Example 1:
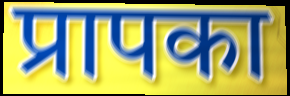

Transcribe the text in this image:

प्रापका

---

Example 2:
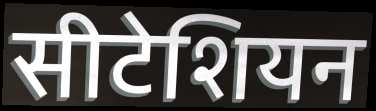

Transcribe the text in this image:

सीटेशियन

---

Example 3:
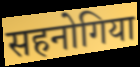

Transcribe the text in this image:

सहनोगिया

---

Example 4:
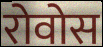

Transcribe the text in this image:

रोवोस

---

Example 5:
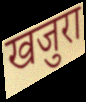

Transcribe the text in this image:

खजुरा